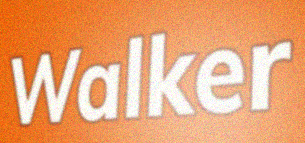
Walker